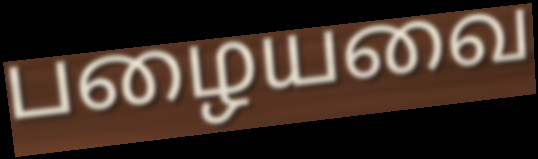
பழையவை